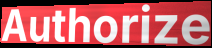
Authorize